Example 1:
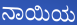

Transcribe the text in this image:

ನಾಯಿಯ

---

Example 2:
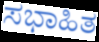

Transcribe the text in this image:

ಸಭಾಹಿತ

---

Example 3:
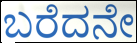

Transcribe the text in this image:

ಬರೆದನೇ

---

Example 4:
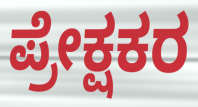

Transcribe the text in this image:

ಪ್ರೇಕ್ಷಕರ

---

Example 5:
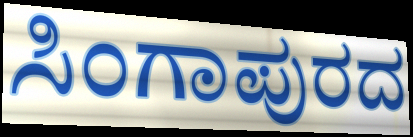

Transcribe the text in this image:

ಸಿಂಗಾಪುರದ